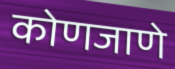
कोणजाणे